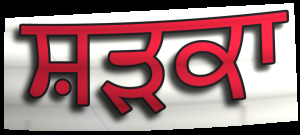
ਸ਼ੜਕਾ